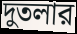
দুতলার